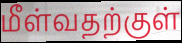
மீள்வதற்குள்